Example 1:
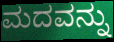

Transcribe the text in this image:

ಮದವನ್ನು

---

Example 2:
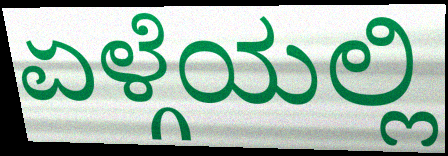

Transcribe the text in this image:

ಏಳ್ಗೆಯಲ್ಲಿ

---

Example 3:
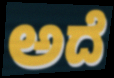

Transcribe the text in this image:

ಅದೆ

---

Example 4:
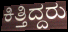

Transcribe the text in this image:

ಕಿತ್ತಿದ್ದರು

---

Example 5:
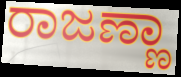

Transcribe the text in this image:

ರಾಜಣ್ಣಾ